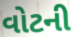
વોટની